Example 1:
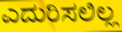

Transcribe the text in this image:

ಎದುರಿಸಲಿಲ್ಲ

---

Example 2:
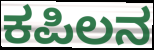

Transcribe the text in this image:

ಕಪಿಲನ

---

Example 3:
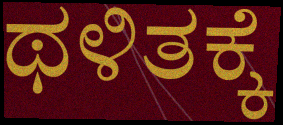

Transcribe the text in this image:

ಥಳಿತಕ್ಕೆ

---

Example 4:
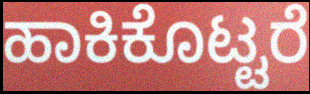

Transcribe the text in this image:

ಹಾಕಿಕೊಟ್ಟರೆ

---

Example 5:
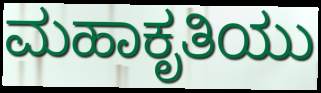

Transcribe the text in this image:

ಮಹಾಕೃತಿಯು